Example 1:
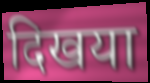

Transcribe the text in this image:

दिखया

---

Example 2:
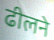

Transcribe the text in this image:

ढीलने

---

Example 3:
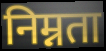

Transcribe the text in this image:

निम्नता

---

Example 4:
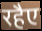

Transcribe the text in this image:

रहैए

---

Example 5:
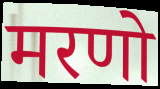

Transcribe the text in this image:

मरणो